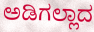
ಅಡಿಗಲ್ಲಾದ